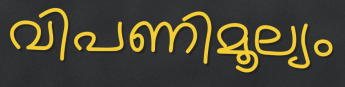
വിപണിമൂല്യം